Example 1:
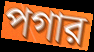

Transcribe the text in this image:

পগার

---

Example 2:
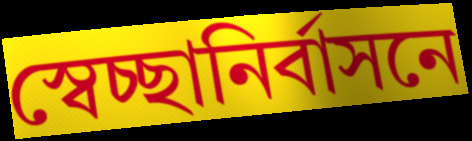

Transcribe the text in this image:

স্বেচ্ছানির্বাসনে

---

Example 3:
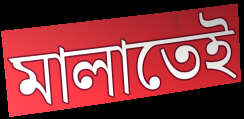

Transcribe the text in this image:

মালাতেই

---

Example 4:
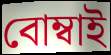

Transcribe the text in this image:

বোম্বাই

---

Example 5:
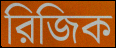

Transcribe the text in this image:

রিজিক